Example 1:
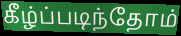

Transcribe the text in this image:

கீழ்ப்படிந்தோம்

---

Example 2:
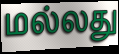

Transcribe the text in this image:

மல்லது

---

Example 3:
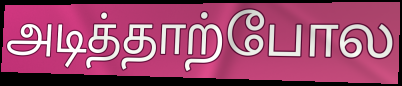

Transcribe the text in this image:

அடித்தாற்போல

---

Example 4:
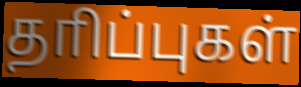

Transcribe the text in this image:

தரிப்புகள்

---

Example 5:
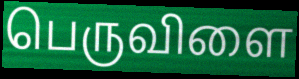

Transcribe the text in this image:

பெருவிளை